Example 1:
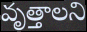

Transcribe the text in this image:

వృత్తాలని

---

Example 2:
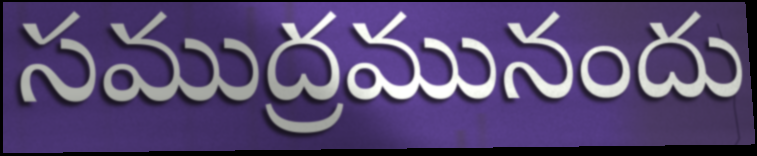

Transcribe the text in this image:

సముద్రమునందు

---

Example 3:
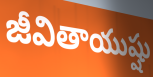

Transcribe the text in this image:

జీవితాయుష్షు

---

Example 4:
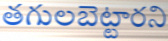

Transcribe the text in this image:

తగులబెట్టారని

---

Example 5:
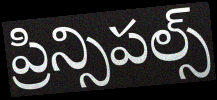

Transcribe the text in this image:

ప్రిన్సిపల్స్